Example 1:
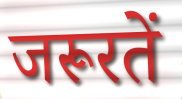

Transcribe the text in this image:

जरूरतें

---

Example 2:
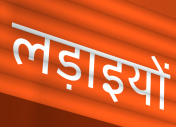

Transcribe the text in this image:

लड़ाइयों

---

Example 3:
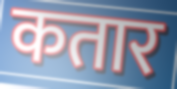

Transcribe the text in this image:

कतार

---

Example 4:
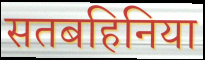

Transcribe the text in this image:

सतबहिनिया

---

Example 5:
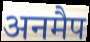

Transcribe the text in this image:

अनमैप